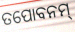
ତପୋବନମ୍